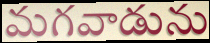
మగవాడును